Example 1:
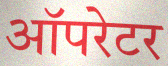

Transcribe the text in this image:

ऑपरेटर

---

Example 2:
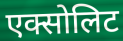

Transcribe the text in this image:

एक्सोलिट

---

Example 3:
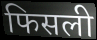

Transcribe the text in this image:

फिसली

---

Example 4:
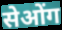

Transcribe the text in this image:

सेओंग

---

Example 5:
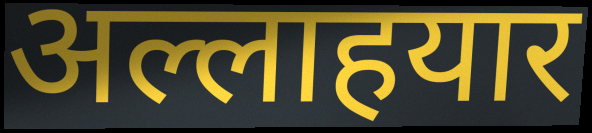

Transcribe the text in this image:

अल्लाहयार